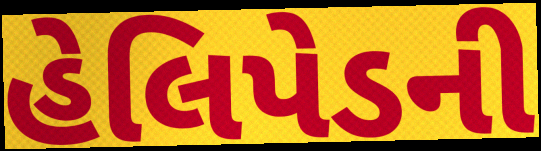
હેલિપેડની